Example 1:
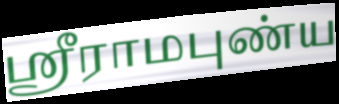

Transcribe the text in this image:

ஸ்ரீராமபுண்ய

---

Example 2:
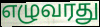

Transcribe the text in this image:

எழுவரது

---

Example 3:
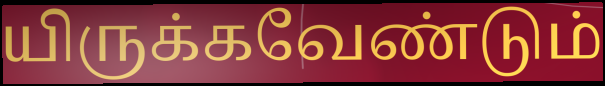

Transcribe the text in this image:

யிருக்கவேண்டும்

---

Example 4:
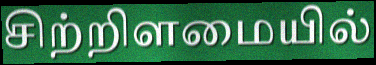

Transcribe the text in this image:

சிற்றிளமையில்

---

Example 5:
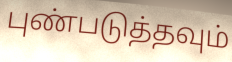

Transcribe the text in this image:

புண்படுத்தவும்